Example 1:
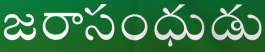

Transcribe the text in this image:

జరాసంధుడు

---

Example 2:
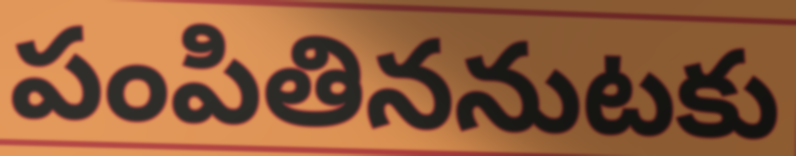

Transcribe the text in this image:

పంపితిననుటకు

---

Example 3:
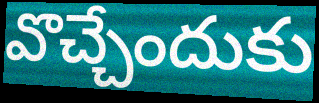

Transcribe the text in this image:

వొచ్చేందుకు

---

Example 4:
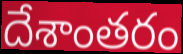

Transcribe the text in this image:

దేశాంతరం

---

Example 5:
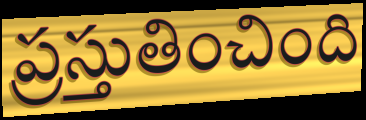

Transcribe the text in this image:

ప్రస్తుతించింది